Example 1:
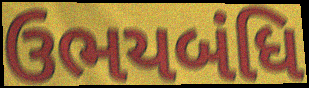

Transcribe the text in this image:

ઉભયબંધિ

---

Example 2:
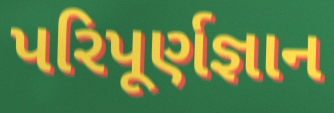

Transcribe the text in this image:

પરિપૂર્ણજ્ઞાન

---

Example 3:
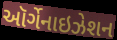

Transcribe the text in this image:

ઑર્ગેનાઇઝેશન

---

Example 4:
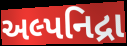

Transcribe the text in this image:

અલ્પનિદ્રા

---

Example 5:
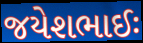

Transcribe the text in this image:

જયેશભાઈઃ